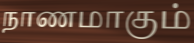
நாணமாகும்